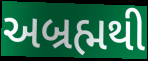
અબ્રહ્મથી